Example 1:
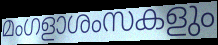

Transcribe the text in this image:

മംഗളാശംസകളും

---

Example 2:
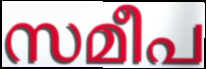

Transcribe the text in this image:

സമീപ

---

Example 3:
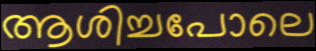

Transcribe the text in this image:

ആശിച്ചപോലെ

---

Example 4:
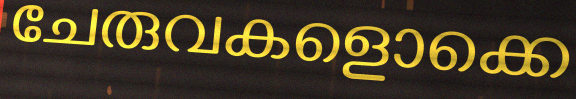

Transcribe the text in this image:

ചേരുവകളൊക്കെ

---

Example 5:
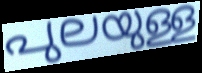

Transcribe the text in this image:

പുലയുള്ള